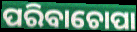
ପରିବାଚୋପା